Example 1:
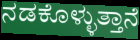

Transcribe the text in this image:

ನಡಕೊಳ್ಳುತ್ತಾನೆ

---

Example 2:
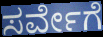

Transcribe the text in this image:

ಸರ್ವೇಗೆ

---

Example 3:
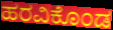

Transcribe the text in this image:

ಹರವಿಕೊಂಡ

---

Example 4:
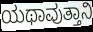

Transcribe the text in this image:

ಯಥಾವುತ್ತಾನಿ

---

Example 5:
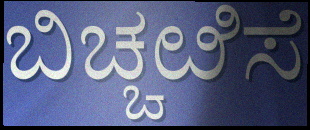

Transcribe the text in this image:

ಬಿಚ್ಚೞಿಸೆ